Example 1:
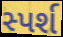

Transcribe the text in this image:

સ્પર્શ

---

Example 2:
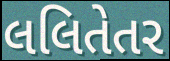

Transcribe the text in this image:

લલિતેતર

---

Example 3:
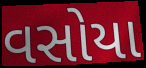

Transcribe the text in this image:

વસોયા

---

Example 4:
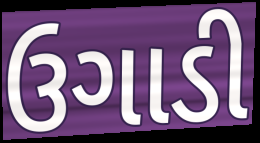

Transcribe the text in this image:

ઉગાડી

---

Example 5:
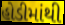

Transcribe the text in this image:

હોડીમાંથી